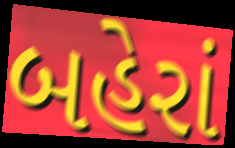
બહેરાં